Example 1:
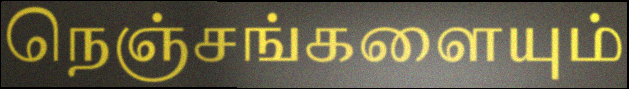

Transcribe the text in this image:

நெஞ்சங்களையும்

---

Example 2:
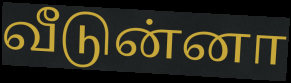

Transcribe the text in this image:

வீடுன்னா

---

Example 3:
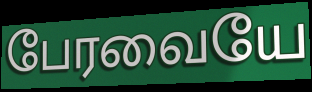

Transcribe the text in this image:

பேரவையே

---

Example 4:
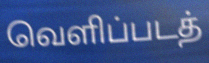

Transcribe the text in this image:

வெளிப்படத்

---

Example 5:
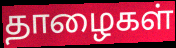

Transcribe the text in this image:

தாழைகள்